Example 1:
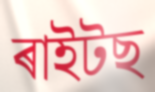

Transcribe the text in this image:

ৰাইটছ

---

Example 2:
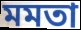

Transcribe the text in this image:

মমতা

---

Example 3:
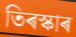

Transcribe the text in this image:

তিৰস্কাৰ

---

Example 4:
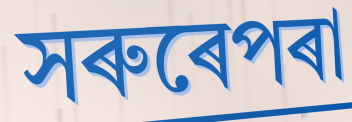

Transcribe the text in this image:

সৰুৰেপৰা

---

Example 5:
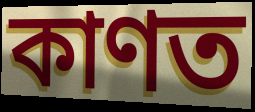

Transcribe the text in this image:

কাণত